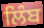
ਲਿੰਬ